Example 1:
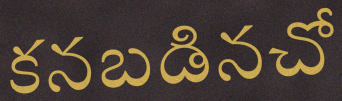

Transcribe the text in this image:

కనబడినచో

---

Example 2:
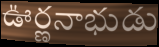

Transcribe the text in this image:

ఊర్ణనాభుడు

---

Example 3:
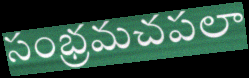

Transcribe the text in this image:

సంభ్రమచపలా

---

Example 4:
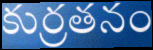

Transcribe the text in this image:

కుర్రతనం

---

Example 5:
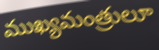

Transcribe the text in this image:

ముఖ్యమంత్రులూ